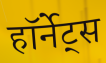
हॉर्नेट्स